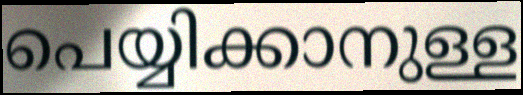
പെയ്യിക്കാനുള്ള